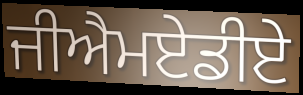
ਜੀਐਮਏਡੀਏ